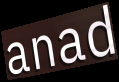
anad